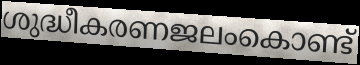
ശുദ്ധീകരണജലംകൊണ്ട്